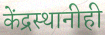
केंद्रस्थानीही